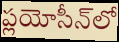
ప్లయోసీన్‌లో